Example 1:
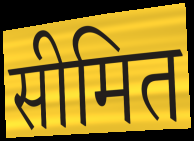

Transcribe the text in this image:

सीमित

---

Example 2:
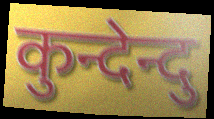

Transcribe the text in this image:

कुन्देन्दु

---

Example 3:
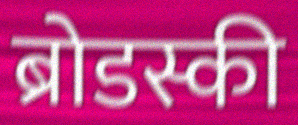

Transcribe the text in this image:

ब्रोडस्की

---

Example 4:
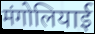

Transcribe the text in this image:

मंगोलियाई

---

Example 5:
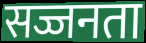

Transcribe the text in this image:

सज्जनता